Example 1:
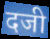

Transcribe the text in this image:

दजी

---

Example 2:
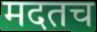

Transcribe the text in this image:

मदतच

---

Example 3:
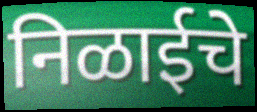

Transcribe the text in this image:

निळाईचे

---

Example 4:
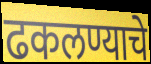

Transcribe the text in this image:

ढकलण्याचे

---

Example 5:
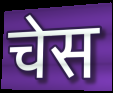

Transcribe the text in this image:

चेस